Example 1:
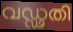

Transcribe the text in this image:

വഡ്ഢതി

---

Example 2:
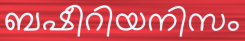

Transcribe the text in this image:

ബഷീറിയനിസം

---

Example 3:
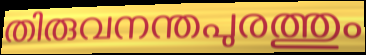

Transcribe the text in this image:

തിരുവനന്തപുരത്തും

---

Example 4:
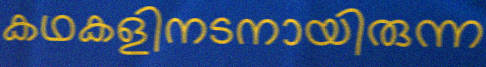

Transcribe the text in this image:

കഥകളിനടനായിരുന്ന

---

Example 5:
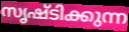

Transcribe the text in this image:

സൃഷ്ടിക്കുന്ന